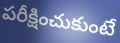
పరీక్షించుకుంటే